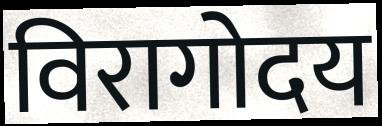
विरागोदय